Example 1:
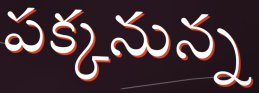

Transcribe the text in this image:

పక్కనున్న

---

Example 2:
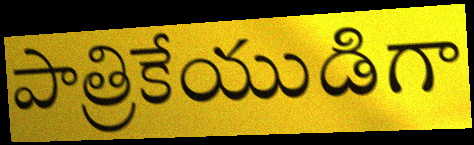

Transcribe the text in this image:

పాత్రికేయుడిగా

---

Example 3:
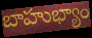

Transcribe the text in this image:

బాహుభ్యాం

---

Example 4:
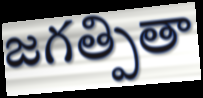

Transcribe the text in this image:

జగత్పితా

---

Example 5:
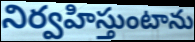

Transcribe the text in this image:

నిర్వహిస్తుంటాను